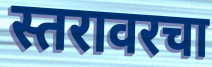
स्तरावरचा